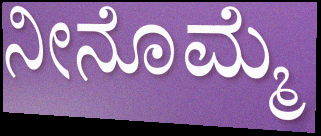
ನೀನೊಮ್ಮೆ